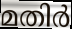
മതിർ